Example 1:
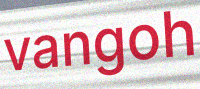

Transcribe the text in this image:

vangoh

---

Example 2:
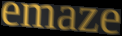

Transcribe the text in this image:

emaze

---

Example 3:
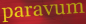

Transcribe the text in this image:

paravum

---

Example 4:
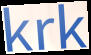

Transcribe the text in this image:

krk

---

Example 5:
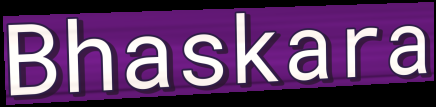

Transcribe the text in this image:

Bhaskara